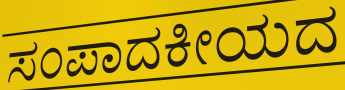
ಸಂಪಾದಕೀಯದ